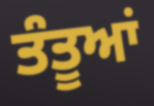
ਤੰਤੂਆਂ